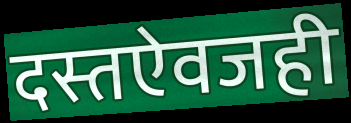
दस्तऐवजही